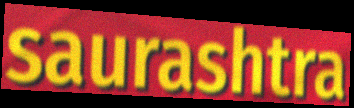
saurashtra